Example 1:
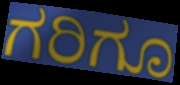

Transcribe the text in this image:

ಗರಿಗೂ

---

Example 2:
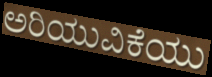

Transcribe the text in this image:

ಅರಿಯುವಿಕೆಯು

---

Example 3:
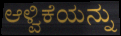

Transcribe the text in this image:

ಆಳ್ವಿಕೆಯನ್ನು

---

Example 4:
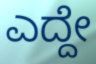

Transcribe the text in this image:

ಎದ್ದೇ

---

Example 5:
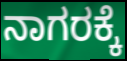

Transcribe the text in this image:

ನಾಗರಕ್ಕೆ